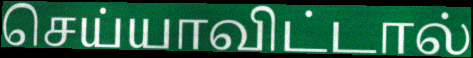
செய்யாவிட்டால்